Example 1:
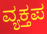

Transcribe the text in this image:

ವ್ಯಕ್ತಪ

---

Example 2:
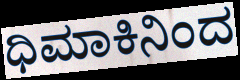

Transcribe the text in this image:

ಧಿಮಾಕಿನಿಂದ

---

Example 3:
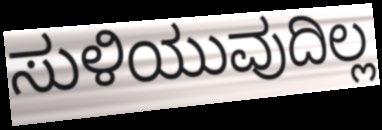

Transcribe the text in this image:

ಸುಳಿಯುವುದಿಲ್ಲ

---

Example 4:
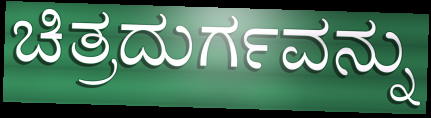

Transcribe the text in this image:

ಚಿತ್ರದುರ್ಗವನ್ನು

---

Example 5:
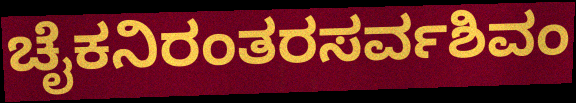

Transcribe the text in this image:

ಚೈಕನಿರಂತರಸರ್ವಶಿವಂ